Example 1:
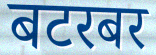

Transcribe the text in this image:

बटरबर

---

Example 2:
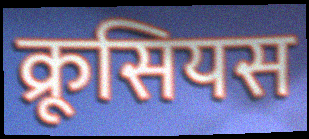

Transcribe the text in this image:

क्रूसियस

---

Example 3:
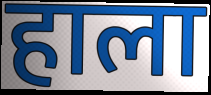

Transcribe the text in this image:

हाला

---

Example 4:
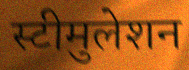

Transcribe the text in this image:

स्टीमुलेशन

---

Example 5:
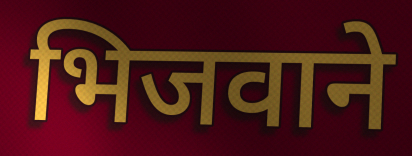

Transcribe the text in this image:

भिजवाने